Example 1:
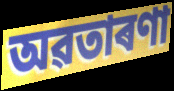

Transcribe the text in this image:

অৱতাৰণা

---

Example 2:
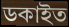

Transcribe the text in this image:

ডকাইত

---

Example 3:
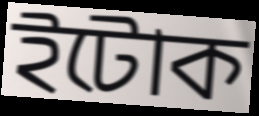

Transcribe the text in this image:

ইটোক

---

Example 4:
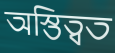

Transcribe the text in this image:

অস্তিত্বত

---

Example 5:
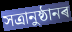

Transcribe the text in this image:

সত্ৰানুষ্ঠানৰ